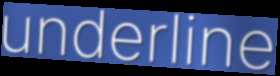
underline